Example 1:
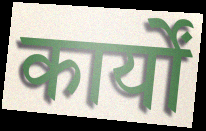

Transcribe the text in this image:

कार्यों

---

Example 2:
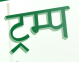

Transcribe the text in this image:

ट्रम्प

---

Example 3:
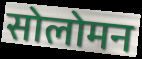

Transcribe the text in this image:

सोलोमन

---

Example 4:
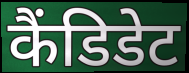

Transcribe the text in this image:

कैंडिडेट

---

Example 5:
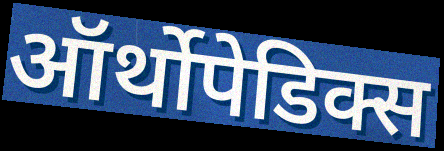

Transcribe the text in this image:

ऑर्थोपेडिक्स